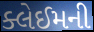
ક્લેઈમની